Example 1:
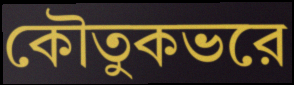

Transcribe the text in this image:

কৌতুকভরে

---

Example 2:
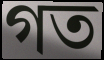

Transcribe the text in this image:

গত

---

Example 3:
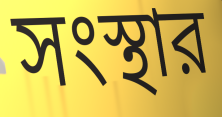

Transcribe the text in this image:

সংস্থার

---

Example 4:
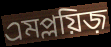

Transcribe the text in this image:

এমপ্লয়িজ়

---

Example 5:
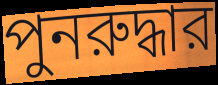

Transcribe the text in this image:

পুনরুদ্ধার